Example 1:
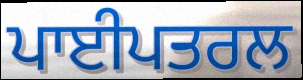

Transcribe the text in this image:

ਪਾਈਪਤਰਲ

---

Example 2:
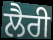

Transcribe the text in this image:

ਲੈਰੀ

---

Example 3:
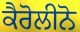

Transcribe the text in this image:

ਕੈਰੋਲੀਨੋ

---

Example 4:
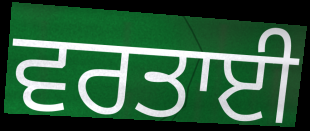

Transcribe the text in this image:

ਵਰਤਾਈ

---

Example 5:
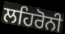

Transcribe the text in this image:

ਲਹਿਰੋਨੀ